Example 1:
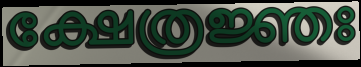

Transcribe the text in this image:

ക്ഷേത്രജ്ഞഃ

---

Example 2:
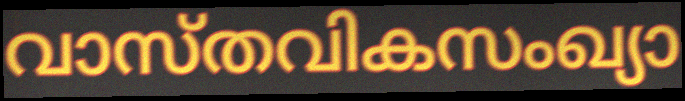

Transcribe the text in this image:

വാസ്തവികസംഖ്യാ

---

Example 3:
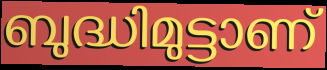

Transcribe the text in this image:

ബുദ്ധിമുട്ടാണ്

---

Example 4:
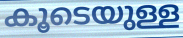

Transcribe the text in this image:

കൂടെയുള്ള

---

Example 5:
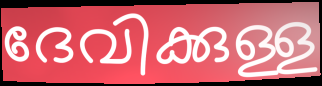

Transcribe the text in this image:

ദേവിക്കുള്ള